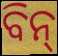
ବିନ୍